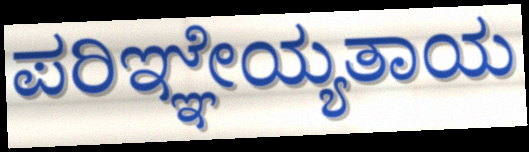
ಪರಿಞ್ಞೇಯ್ಯತಾಯ